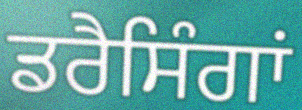
ਡਰੈਸਿੰਗਾਂ